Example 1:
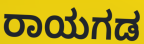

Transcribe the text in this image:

ರಾಯಗಡ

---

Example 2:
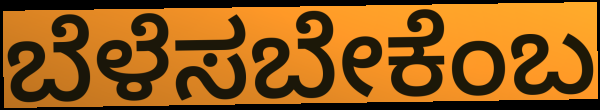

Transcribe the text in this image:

ಬೆಳೆಸಬೇಕೆಂಬ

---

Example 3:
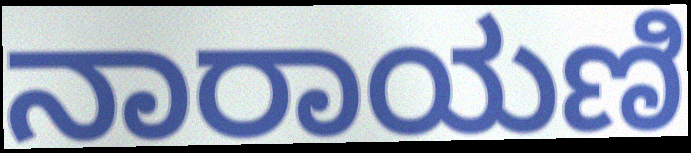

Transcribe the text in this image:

ನಾರಾಯಣಿ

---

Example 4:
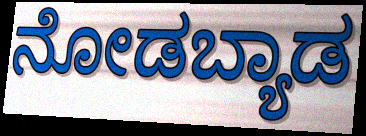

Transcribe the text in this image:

ನೋಡಬ್ಯಾಡ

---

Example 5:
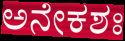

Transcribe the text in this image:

ಅನೇಕಶಃ